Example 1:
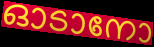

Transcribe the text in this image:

ഓടാനോ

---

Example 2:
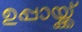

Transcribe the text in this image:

ഉപ്പായ്ക്ക്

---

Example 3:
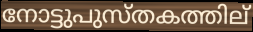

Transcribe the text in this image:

നോട്ടുപുസ്തകത്തില്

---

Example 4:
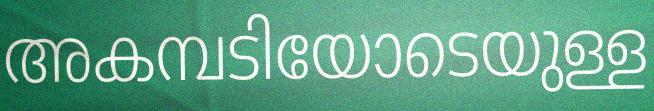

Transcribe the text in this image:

അകമ്പടിയോടെയുള്ള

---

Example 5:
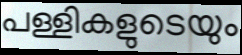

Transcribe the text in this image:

പള്ളികളുടെയും